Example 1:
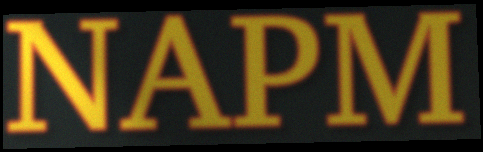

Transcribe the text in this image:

NAPM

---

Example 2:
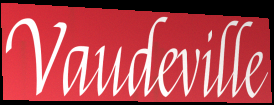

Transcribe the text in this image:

Vaudeville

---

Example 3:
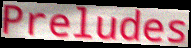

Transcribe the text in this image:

Preludes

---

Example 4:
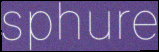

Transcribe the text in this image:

sphure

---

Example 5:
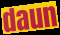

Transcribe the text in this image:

daun